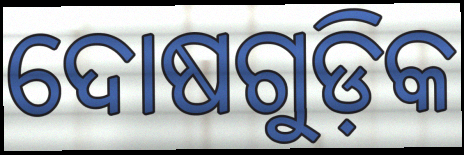
ଦୋଷଗୁଡ଼ିକ